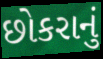
છોકરાનું